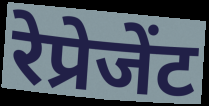
रेप्रेजेंट